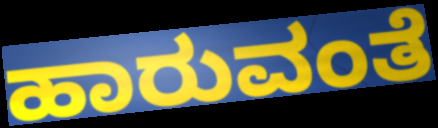
ಹಾರುವಂತೆ